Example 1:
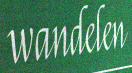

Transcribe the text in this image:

wandelen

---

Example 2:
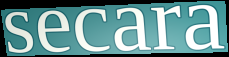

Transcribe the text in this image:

secara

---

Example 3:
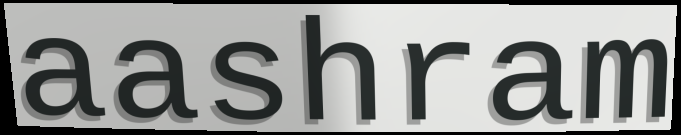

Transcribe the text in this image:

aashram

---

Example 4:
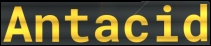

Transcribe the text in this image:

Antacid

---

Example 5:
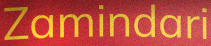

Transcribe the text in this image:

Zamindari